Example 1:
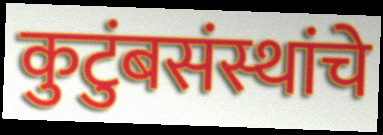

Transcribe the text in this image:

कुटुंबसंस्थांचे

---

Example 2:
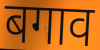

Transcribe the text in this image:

बगाव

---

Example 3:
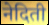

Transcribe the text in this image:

नेदिती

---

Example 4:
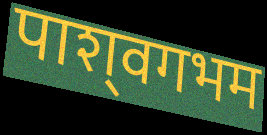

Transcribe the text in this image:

पाश्वगभम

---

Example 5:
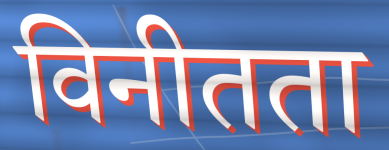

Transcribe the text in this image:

विनीतता